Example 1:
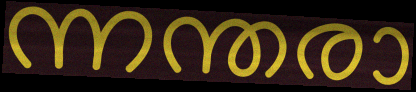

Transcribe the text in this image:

ന്നന്തരാ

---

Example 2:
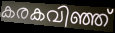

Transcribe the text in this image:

കരകവിഞ്ഞ്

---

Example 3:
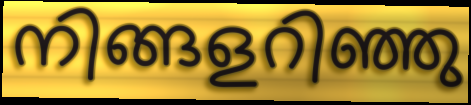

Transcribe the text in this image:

നിങ്ങളറിഞ്ഞു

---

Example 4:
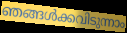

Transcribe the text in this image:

ഞങ്ങൾക്കവിടുന്നാം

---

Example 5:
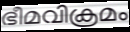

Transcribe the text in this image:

ഭീമവിക്രമം